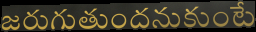
జరుగుతుందనుకుంటే